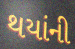
થયાંની